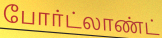
போர்ட்லாண்ட்